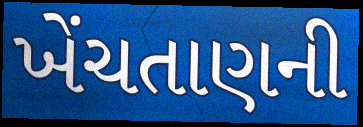
ખેંચતાણની